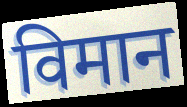
विमान